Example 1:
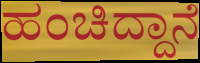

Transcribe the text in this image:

ಹಂಚಿದ್ದಾನೆ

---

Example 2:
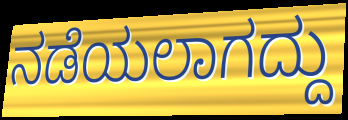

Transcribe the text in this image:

ನಡೆಯಲಾಗದ್ದು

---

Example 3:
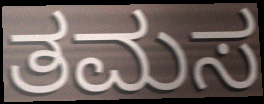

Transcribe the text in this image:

ತಮಸ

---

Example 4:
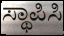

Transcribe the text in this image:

ಸ್ಥಾಪಿಸಿ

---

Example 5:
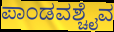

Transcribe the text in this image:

ಪಾಂಡವಶ್ಚೈವ